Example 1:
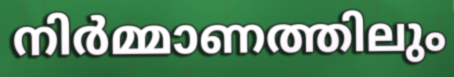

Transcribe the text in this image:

നിർമ്മാണത്തിലും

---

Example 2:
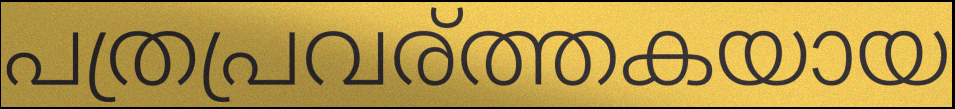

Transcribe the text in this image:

പത്രപ്രവര്ത്തകയായ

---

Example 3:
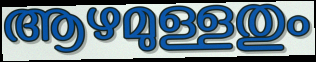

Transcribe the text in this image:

ആഴമുള്ളതും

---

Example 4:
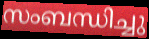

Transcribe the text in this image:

സംബന്ധിച്ചു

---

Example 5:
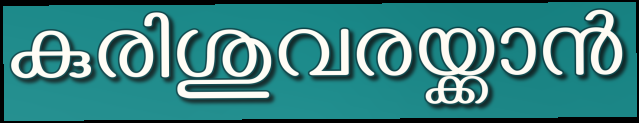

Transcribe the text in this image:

കുരിശുവരയ്ക്കാൻ